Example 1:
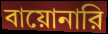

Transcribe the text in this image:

বায়োনারি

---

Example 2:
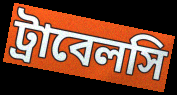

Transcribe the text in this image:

ট্রাবেলসি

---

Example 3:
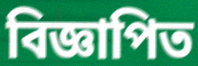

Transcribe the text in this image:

বিজ্ঞাপিত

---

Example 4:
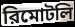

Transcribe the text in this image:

রিমোটলি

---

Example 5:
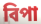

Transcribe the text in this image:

বিপা